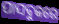
ପାସବୁକରେ